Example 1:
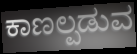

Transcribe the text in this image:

ಕಾಣಲ್ಪಡುವ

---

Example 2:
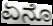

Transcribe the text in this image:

ಏನೊ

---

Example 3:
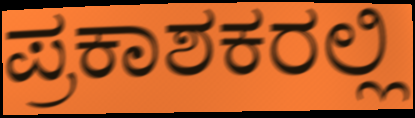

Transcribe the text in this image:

ಪ್ರಕಾಶಕರಲ್ಲಿ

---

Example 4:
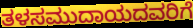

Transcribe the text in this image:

ತಳಸಮುದಾಯದವರಿಗೆ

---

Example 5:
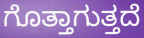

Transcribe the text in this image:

ಗೊತ್ತಾಗುತ್ತದೆ